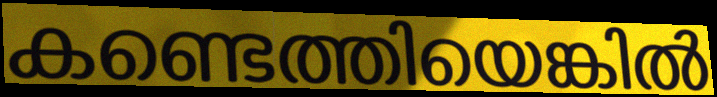
കണ്ടെത്തിയെങ്കിൽ